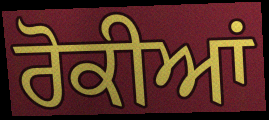
ਰੋਕੀਆਂ